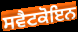
ਸਵੈਟਕੋਇਨ